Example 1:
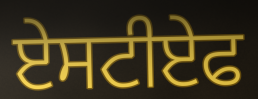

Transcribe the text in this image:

ਏਸਟੀਏਫ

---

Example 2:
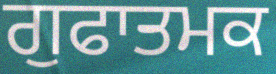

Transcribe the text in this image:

ਗੁਫਾਤਮਕ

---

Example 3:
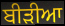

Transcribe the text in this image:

ਬੀੜੀਆ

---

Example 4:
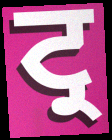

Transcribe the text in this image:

ਟ੍ਰ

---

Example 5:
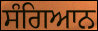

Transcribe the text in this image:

ਸੰਗਿਆਨ